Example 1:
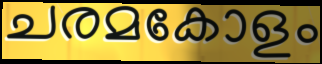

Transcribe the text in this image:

ചരമകോളം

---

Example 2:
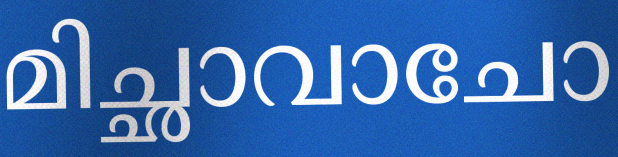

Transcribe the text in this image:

മിച്ഛാവാചോ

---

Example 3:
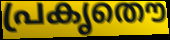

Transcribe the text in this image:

പ്രകൃതൌ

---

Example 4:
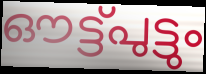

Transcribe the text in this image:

ഔട്ട്പുട്ടും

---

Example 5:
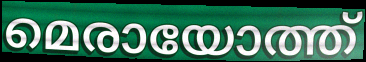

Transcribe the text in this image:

മെരായോത്ത്